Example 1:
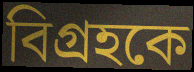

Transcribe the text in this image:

বিগ্রহকে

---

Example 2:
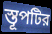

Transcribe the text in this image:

স্তূপটির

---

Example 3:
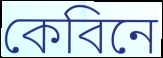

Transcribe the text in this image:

কেবিনে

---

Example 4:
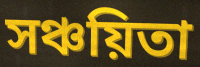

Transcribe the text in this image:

সঞ্চয়িতা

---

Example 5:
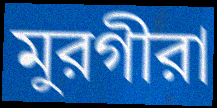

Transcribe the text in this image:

মুরগীরা